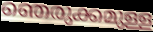
ഞെരുക്കമുള്ള